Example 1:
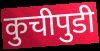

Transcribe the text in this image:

कुचीपुडी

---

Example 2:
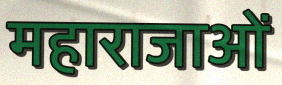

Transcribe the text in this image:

महाराजाओं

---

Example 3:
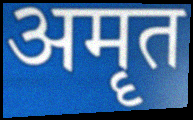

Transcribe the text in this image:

अमॄत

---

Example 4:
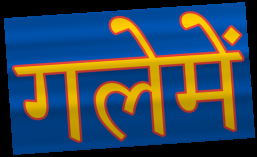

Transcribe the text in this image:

गलेमें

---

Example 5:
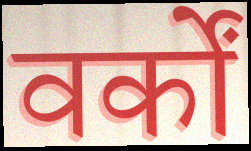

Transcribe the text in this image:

वर्कों